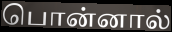
பொன்னால்